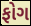
ફોગ